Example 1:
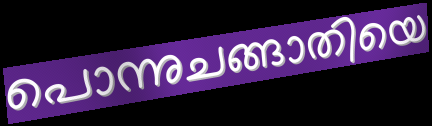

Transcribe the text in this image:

പൊന്നുചങ്ങാതിയെ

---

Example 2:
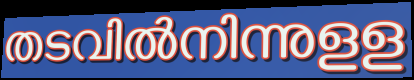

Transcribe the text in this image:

തടവിൽനിന്നുളള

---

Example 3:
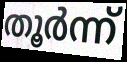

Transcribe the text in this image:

തൂർന്ന്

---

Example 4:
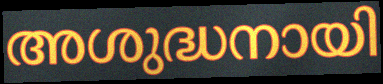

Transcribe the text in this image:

അശുദ്ധനായി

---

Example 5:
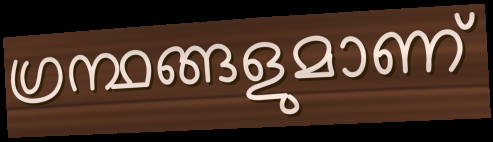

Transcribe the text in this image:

ഗ്രന്ഥങ്ങളുമാണ്